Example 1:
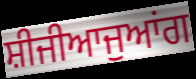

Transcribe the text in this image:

ਸ਼ੀਜੀਆਜੁਆਂਗ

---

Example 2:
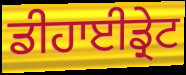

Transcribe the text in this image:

ਡੀਹਾਈਡ੍ਰੇਟ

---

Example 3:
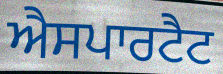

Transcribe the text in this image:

ਐਸਪਾਰਟੈਟ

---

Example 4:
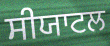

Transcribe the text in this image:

ਸੀਯਾਟਲ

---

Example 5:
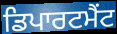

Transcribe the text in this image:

ਡਿਪਾਰਟਮੈਂਟ